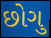
છોગુ